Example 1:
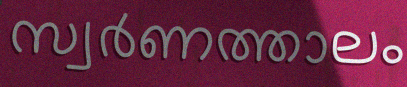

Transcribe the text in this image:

സ്വർണത്താലം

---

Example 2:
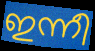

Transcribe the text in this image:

ഇന്നീ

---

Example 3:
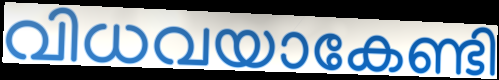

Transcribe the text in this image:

വിധവയാകേണ്ടി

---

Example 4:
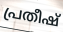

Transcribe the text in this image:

പ്രതീഷ്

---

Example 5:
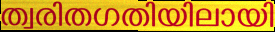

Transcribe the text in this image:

ത്വരിതഗതിയിലായി